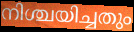
നിശ്ചയിച്ചതും